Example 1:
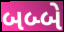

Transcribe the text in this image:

બબ્બે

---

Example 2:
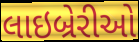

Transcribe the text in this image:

લાઇબ્રેરીઓ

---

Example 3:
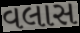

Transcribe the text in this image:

વલાસ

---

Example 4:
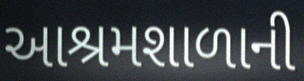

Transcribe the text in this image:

આશ્રમશાળાની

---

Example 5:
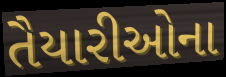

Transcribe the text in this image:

તૈયારીઓના